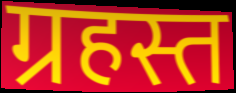
ग्रहस्त